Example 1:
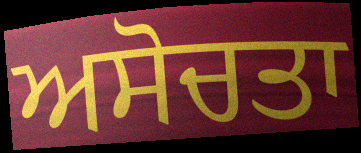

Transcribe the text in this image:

ਅਸੋਚਤਾ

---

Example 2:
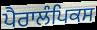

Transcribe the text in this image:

ਪੈਰਾਲੰਪਿਕਸ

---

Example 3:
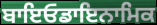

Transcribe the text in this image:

ਬਾਇਓਡਾਇਨਾਮਿਕ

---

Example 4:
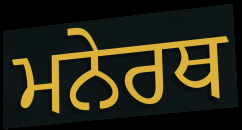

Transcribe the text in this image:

ਮਨੇਰਥ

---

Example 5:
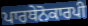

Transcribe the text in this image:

ਪਾਰਥੇਨੋਕਾਰਪੀ